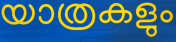
യാത്രകളും